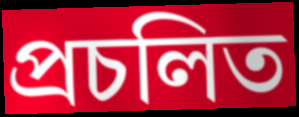
প্রচলিত